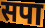
सपा